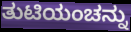
ತುಟಿಯಂಚನ್ನು